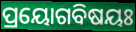
ପ୍ରୟୋଗବିଷୟଃ